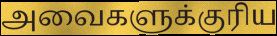
அவைகளுக்குரிய